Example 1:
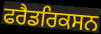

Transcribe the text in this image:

ਫਰੈਡਰਿਕਸਨ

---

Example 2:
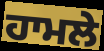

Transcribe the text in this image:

ਹਾਮਲੇ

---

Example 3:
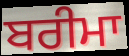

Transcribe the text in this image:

ਬਰੀਮਾ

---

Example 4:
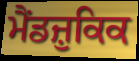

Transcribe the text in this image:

ਮੈਂਡਜ਼ੁਕਿਕ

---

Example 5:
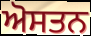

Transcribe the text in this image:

ਅੋਸਤਨ